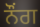
ਨੌਂਗ